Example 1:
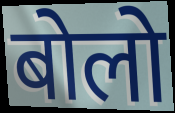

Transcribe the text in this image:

बोलो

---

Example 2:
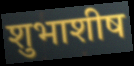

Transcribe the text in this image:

शुभाशीष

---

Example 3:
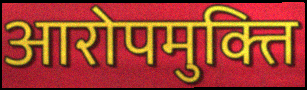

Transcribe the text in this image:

आरोपमुक्ति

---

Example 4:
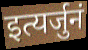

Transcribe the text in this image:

इत्यर्जुनं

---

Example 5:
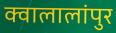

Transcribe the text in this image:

क्वालालांपुर